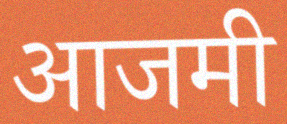
आजमी